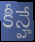
కీన్హే